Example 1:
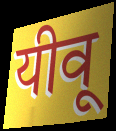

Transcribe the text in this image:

यीवू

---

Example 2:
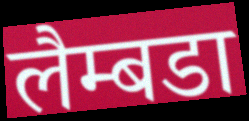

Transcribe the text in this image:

लैम्बडा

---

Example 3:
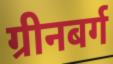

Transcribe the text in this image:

ग्रीनबर्ग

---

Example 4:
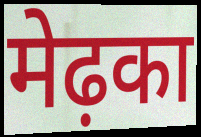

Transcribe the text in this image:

मेढ़का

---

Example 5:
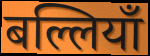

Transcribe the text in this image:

बल्लियाँ